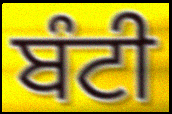
ਬੰਟੀ